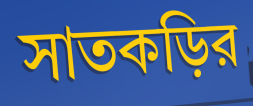
সাতকড়ির